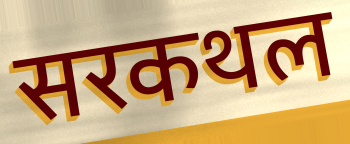
सरकथल